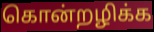
கொன்றழிக்க